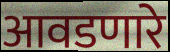
आवडणारे